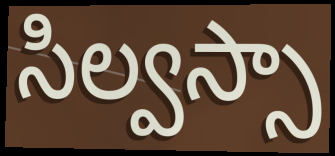
సిల్వస్సా